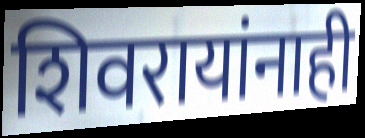
शिवरायांनाही